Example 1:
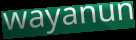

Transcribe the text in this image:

wayanun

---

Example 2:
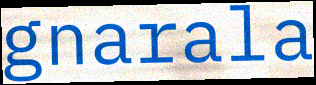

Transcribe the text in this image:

gnarala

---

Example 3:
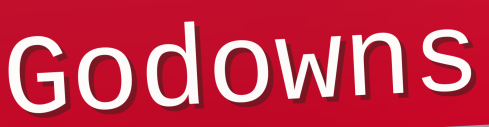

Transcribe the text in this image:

Godowns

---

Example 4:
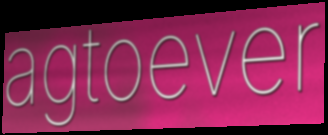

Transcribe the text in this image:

agtoever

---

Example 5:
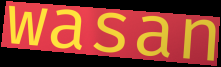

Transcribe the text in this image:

wasan